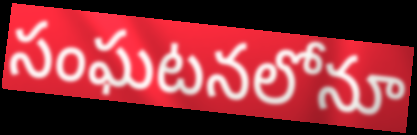
సంఘటనలోనూ